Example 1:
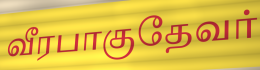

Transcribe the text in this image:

வீரபாகுதேவர்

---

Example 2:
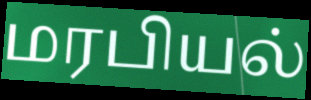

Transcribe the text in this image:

மரபியல்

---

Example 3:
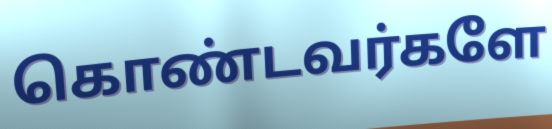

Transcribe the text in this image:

கொண்டவர்களே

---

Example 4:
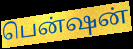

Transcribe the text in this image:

பென்ஷன்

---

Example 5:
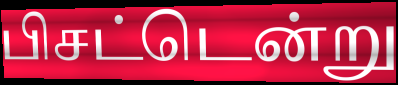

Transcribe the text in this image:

பிசட்டென்று